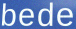
bede